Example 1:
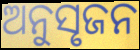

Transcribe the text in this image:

ଅନୁସୃଜନ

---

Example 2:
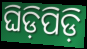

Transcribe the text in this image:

ଘିଡ଼ିପିଡ଼ି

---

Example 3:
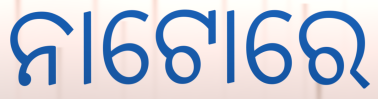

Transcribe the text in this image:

ନାଟୋରେ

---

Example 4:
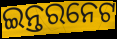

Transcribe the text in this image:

ଇନ୍ତରନେଟ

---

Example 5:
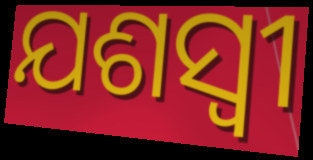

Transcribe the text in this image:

ଯଶସ୍ଵୀ